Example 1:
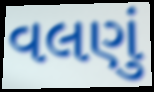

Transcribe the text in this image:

વલણું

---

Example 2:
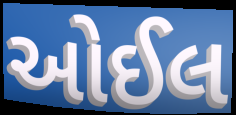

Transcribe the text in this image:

ઓઈલ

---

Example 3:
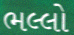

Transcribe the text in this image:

ભલ્લો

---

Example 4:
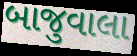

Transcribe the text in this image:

બાજુવાલા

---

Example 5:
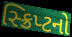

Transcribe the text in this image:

સ્ક્રિપ્ટનો